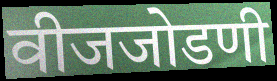
वीजजोडणी